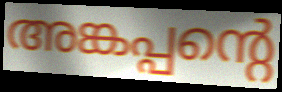
അങ്കപ്പന്റെ